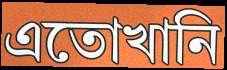
এতোখানি